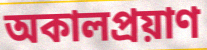
অকালপ্রয়াণ